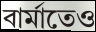
বার্মাতেও